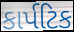
કાર્પટિક